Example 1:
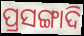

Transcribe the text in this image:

ପ୍ରସଙ୍ଗାଦି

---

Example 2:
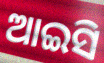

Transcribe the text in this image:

ଆଇସି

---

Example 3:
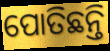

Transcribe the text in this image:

ପୋତିଛନ୍ତି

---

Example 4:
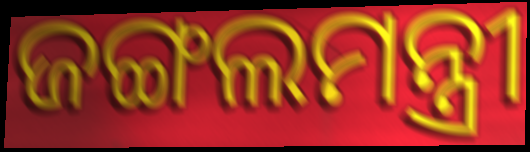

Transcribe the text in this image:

ଜଙ୍ଗଲମନ୍ତ୍ରୀ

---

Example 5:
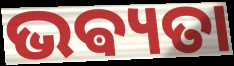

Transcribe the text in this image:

ଭଵ୍ୟତା